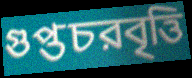
গুপ্তচরবৃত্তি